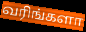
வரிங்களா